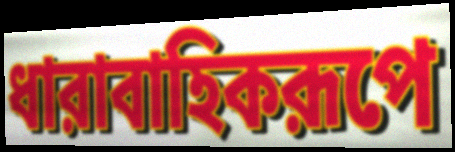
ধারাবাহিকরূপে